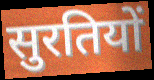
सुरतियों